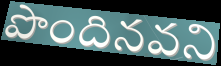
పొందినవని